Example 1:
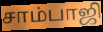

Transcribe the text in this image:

சாம்பாஜி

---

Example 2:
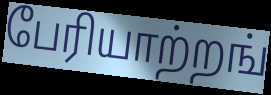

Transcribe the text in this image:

பேரியாற்றங்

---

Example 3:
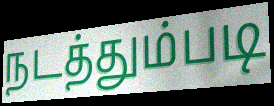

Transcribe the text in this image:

நடத்தும்படி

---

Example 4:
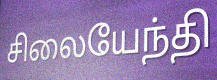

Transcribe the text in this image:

சிலையேந்தி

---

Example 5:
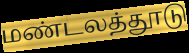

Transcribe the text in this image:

மண்டலத்தூடு